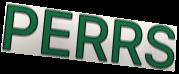
PERRS